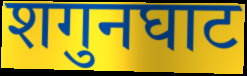
शगुनघाट